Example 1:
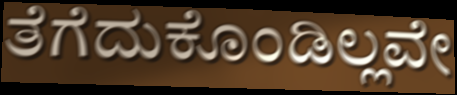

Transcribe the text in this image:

ತೆಗೆದುಕೊಂಡಿಲ್ಲವೇ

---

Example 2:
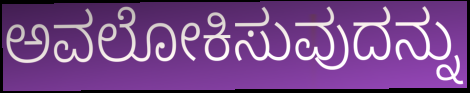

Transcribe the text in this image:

ಅವಲೋಕಿಸುವುದನ್ನು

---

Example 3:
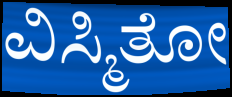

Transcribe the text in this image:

ವಿಸ್ಮಿತೋ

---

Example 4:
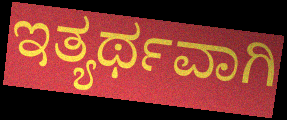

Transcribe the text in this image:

ಇತ್ಯರ್ಥವಾಗಿ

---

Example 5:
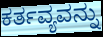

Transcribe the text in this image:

ಕರ್ತವ್ಯವನ್ನು